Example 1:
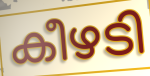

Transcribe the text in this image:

കീഴടി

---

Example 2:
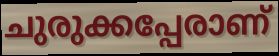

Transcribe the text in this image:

ചുരുക്കപ്പേരാണ്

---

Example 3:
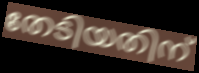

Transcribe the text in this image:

തേടിയതിന്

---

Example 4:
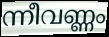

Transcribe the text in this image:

ന്നീവണ്ണം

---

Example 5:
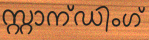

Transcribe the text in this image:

സ്റ്റാന്ഡിംഗ്